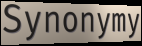
Synonymy